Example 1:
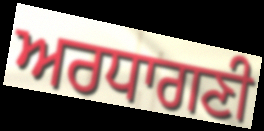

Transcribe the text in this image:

ਅਰਧਾਗਣੀ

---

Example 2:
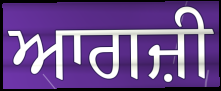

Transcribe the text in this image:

ਆਗਜ਼ੀ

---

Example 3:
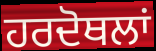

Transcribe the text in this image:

ਹਰਦੋਥਲਾਂ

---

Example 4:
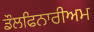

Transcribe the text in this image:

ਡੌਲਫਿਨਾਰੀਅਮ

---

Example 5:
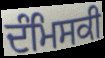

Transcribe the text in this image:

ਦੰਮਿਸਕੀ